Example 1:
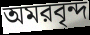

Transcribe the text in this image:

অমরবৃন্দ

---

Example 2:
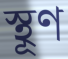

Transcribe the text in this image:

স্থূণ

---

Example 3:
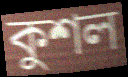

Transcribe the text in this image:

কুশল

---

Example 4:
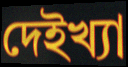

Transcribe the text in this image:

দেইখ্যা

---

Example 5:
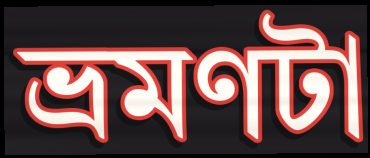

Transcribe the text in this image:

ভ্রমণটা